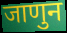
जाणुन